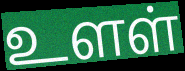
உளள்